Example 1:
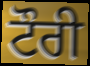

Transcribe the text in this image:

ਟੌਰੀ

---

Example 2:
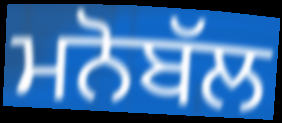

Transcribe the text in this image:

ਮਨੋਬੱਲ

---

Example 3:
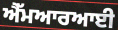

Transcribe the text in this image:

ਐੱਮਆਰਆਈ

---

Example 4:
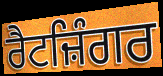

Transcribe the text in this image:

ਰੈਟਜ਼ਿੰਗਰ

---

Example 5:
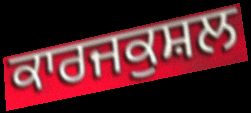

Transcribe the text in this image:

ਕਾਰਜਕੁਸ਼ਲ